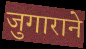
जुगाराने